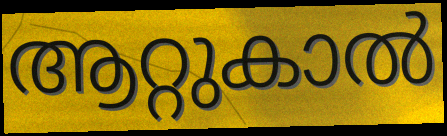
ആറ്റുകാൽ